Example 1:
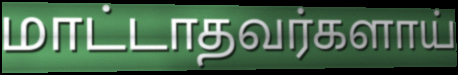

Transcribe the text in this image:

மாட்டாதவர்களாய்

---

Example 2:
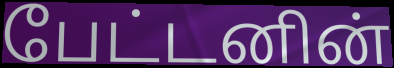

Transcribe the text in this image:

பேட்டனின்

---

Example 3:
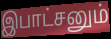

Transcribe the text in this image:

இபாட்சனும்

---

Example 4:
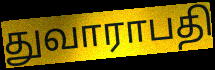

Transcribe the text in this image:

துவாராபதி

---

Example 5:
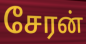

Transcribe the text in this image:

சேரன்